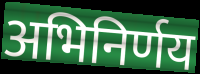
अभिनिर्णय